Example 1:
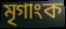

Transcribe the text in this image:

মৃগাংক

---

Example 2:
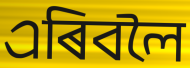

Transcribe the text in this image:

এৰিবলৈ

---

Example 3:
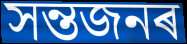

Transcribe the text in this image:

সন্তজনৰ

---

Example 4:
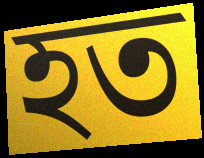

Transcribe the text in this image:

হত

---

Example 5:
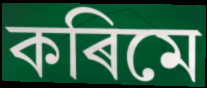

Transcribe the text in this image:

কৰিমে